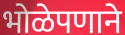
भोळेपणाने